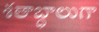
శతాబ్ధాలుగా